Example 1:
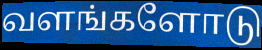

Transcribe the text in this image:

வளங்களோடு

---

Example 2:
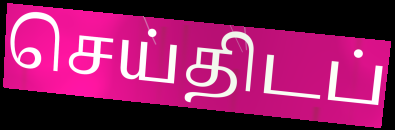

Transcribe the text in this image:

செய்திடப்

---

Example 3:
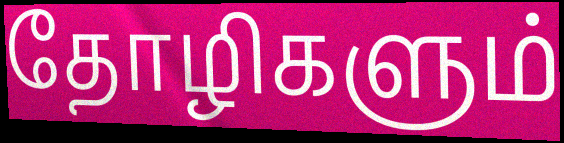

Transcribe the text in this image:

தோழிகளும்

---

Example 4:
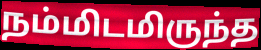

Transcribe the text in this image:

நம்மிடமிருந்த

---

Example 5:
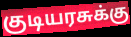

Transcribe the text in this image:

குடியரசுக்கு